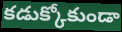
కడుక్కోకుండా